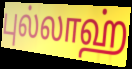
புல்லாஹ்